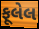
ફૂલેલ